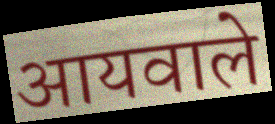
आयवाले